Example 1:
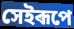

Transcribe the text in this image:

সেইৰূপে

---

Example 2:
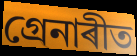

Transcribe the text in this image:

গ্ৰেনাৰীত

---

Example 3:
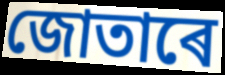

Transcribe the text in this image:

জোতাৰে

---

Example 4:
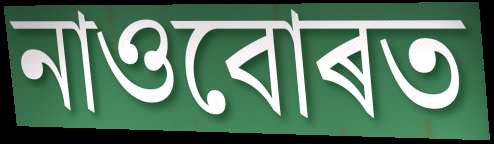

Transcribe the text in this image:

নাওবোৰত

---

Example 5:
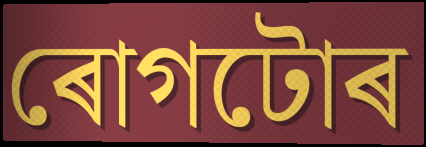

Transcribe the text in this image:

ৰোগটোৰ